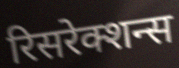
रिसरेक्शन्स